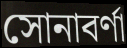
সোনাবর্ণা